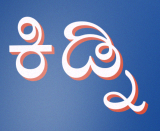
ಕಿಡ್ನಿ